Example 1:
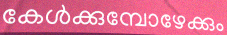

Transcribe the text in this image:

കേൾക്കുമ്പോഴേക്കും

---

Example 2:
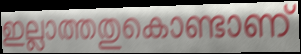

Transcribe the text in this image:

ഇല്ലാത്തതുകൊണ്ടാണ്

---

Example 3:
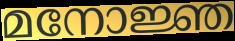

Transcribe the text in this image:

മനോജ്ഞ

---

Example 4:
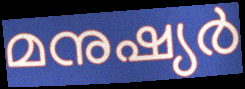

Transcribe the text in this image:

മനുഷ്യർ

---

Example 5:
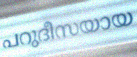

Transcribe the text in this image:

പറുദീസയായ